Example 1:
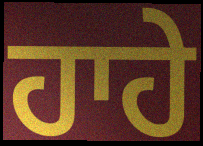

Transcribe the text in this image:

ਹਾਹੇ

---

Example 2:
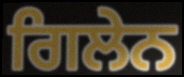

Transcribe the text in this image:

ਗਿਲੇਨ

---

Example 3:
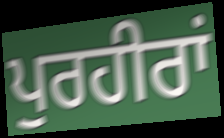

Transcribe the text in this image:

ਪੁਰਹੀਰਾਂ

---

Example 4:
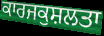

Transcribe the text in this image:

ਕਾਰਜਕੁਸ਼ਲਤਾ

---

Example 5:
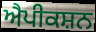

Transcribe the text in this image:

ਐਪੀਕਸ਼ਨ